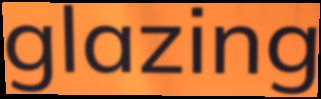
glazing